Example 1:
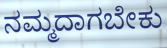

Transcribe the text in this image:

ನಮ್ಮದಾಗಬೇಕು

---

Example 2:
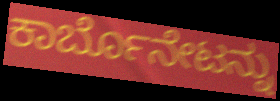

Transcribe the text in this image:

ಕಾರ್ಬೊನೇಟನ್ನು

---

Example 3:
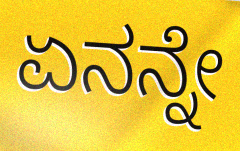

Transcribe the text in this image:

ಏನನ್ನೇ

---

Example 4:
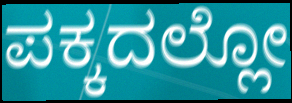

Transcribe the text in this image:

ಪಕ್ಕದಲ್ಲೋ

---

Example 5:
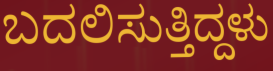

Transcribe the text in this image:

ಬದಲಿಸುತ್ತಿದ್ದಳು